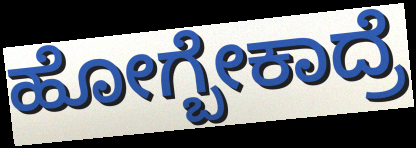
ಹೋಗ್ಬೇಕಾದ್ರೆ